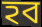
হব